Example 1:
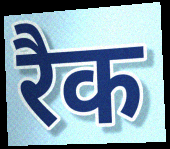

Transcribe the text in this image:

रैक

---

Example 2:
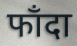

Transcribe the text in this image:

फाँदा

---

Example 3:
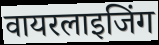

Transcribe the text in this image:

वायरलाइजिंग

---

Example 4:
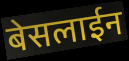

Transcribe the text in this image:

बेसलाईन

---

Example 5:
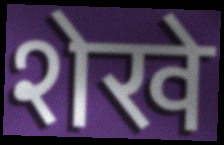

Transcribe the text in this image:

शेखे